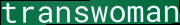
transwoman